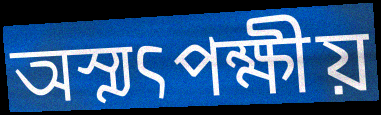
অস্মৎপক্ষীয়